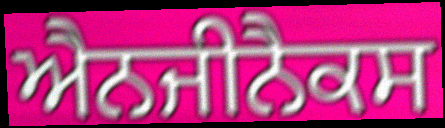
ਐਨਜੀਨੈਕਸ